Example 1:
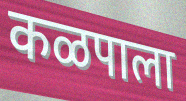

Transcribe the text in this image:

कळपाला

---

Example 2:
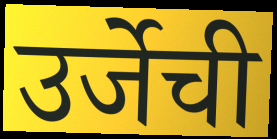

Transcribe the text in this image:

उर्जेची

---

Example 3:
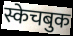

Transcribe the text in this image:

स्केचबुक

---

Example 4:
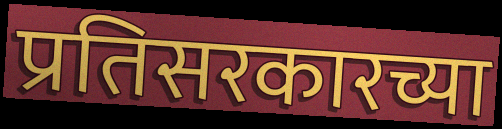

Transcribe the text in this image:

प्रतिसरकारच्या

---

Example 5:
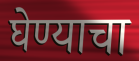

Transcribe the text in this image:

घेण्याचा